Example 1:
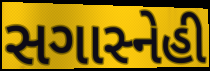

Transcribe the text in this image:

સગાસ્નેહી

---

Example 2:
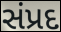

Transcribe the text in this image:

સંપ્રદ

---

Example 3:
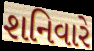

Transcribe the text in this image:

શનિવારે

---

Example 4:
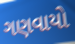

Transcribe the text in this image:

ગણવાયો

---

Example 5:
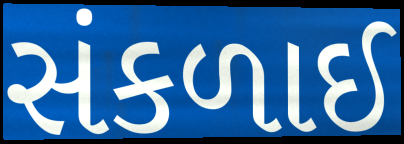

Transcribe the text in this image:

સંકળાઈ